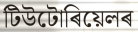
টিউটোৰিয়েলৰ